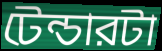
টেন্ডারটা